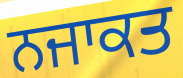
ਨਜਾਕਤ